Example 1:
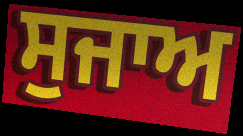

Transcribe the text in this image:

ਸੁਜਾਅ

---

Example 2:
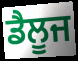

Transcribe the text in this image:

ਡੈਲੂਜ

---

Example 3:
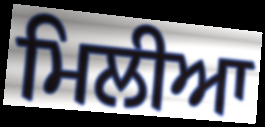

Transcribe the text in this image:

ਮਿਲੀਆ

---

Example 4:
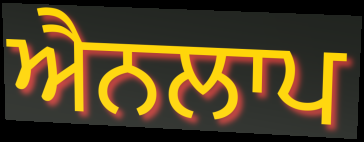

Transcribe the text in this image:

ਐਨਲਾਪ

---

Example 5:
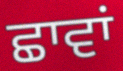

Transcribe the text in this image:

ਛਾਵਾਂ